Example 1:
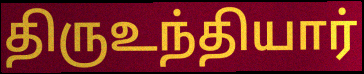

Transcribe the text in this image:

திருஉந்தியார்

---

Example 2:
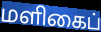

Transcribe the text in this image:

மளிகைப்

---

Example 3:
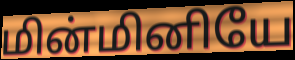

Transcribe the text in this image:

மின்மினியே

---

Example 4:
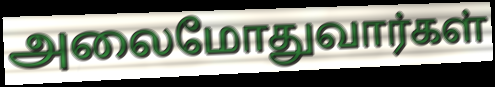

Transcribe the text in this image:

அலைமோதுவார்கள்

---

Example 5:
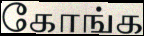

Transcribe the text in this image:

கோங்க